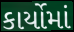
કાર્યોમાં